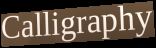
Calligraphy